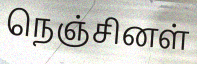
நெஞ்சினள்